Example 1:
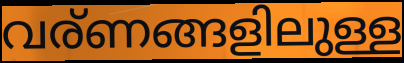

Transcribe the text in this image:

വര്ണങ്ങളിലുള്ള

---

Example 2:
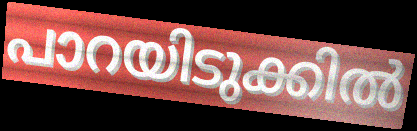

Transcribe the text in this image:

പാറയിടുക്കിൽ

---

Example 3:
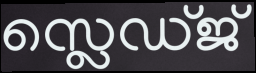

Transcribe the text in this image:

സ്ലെഡ്ജ്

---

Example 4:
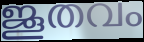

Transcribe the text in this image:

ജൂതവം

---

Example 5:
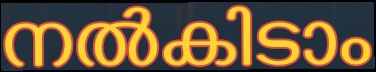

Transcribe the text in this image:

നൽകിടാം